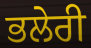
ਭਲੇਰੀ